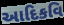
આદિકવિ